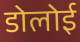
डोलोई